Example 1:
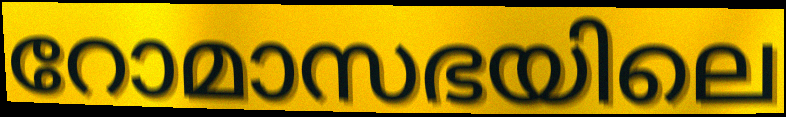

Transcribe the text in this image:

റോമാസഭയിലെ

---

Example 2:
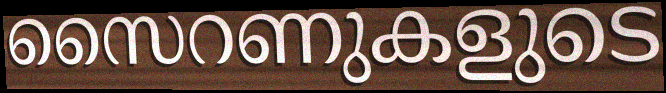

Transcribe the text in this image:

സൈറണുകളുടെ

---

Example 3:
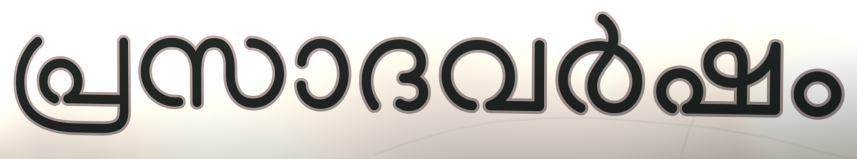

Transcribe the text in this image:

പ്രസാദവർഷം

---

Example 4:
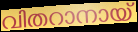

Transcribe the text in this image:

വിതറാനായ്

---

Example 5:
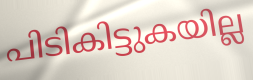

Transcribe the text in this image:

പിടികിട്ടുകയില്ല